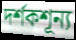
দর্শকশূন্য